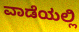
ವಾಡೆಯಲ್ಲಿ